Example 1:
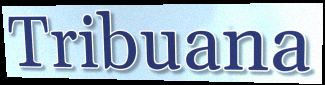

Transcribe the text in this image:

Tribuana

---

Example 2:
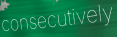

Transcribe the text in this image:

consecutively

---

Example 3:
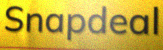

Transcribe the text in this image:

Snapdeal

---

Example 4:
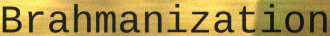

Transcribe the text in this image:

Brahmanization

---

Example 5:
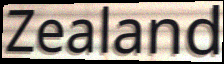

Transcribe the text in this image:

Zealand